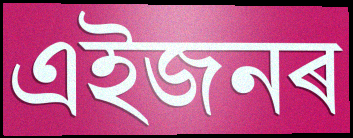
এইজনৰ